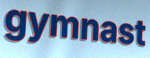
gymnast